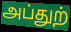
அப்துற்